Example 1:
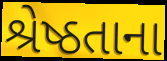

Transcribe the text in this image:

શ્રેષ્ઠતાના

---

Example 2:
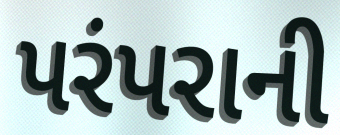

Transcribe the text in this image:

પરંપરાની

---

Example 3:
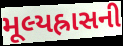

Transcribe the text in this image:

મૂલ્યહ્રાસની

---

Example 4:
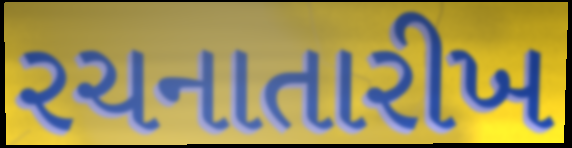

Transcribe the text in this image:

રચનાતારીખ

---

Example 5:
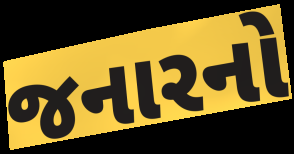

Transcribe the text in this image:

જનારનો